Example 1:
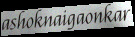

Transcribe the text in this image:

ashoknaigaonkar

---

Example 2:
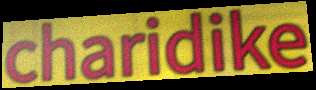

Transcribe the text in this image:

charidike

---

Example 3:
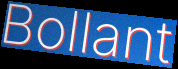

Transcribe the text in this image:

Bollant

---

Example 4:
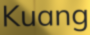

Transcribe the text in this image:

Kuang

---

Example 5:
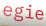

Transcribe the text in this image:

egie